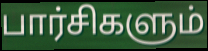
பார்சிகளும்